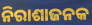
ନିରାଶାଜନକ